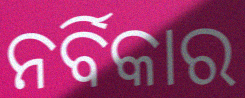
ନର୍ବିକାର